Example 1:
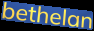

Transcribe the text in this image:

bethelan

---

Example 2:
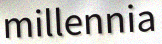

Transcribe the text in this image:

millennia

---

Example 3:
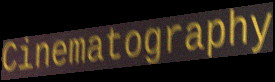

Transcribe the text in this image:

Cinematography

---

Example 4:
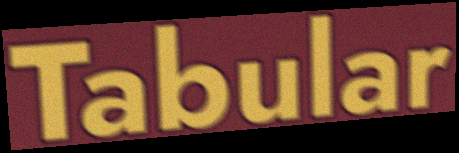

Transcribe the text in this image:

Tabular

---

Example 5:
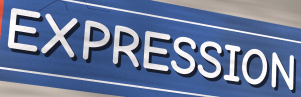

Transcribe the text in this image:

EXPRESSION